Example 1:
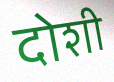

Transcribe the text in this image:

दोशी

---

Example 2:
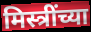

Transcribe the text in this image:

मिस्त्रींच्या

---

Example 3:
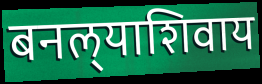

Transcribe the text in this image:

बनल्याशिवाय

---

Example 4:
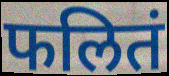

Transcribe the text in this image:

फलितं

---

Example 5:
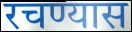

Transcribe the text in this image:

रचण्यास